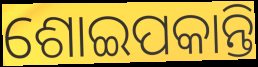
ଶୋଇପକାନ୍ତି